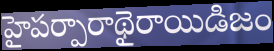
హైపర్పారాథైరాయిడిజం